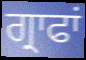
ਗ੍ਰਾਫਾਂ